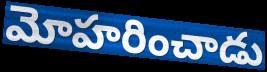
మోహరించాడు